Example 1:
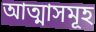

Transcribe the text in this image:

আত্মাসমূহ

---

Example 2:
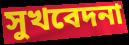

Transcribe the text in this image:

সুখবেদনা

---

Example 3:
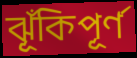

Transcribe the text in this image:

ঝূঁকিপূর্ণ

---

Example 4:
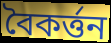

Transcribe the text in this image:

বৈকর্ত্তন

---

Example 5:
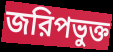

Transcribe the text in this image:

জরিপভুক্ত